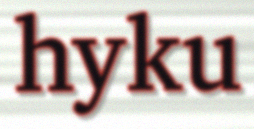
hyku